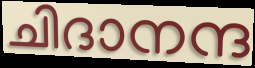
ചിദാനന്ദ